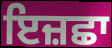
ਇਜ਼ਛਾ